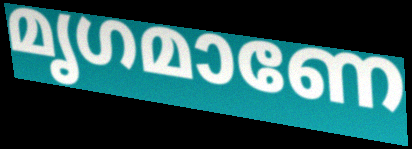
മൃഗമാണേ